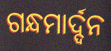
ଗନ୍ଧମାର୍ଦ୍ଦନ